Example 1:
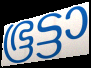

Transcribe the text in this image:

ഭൂട്ടാ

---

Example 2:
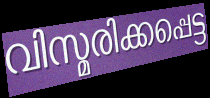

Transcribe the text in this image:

വിസ്മരിക്കപ്പെട്ട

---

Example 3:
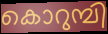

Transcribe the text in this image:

കൊറുമ്പി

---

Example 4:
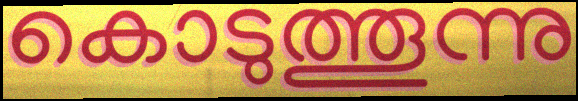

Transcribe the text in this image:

കൊടുത്തൂന്നു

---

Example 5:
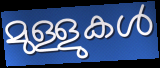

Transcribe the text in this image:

മുള്ളുകൾ